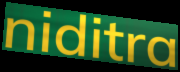
niditra